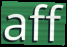
aff